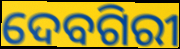
ଦେବଗିରୀ